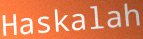
Haskalah